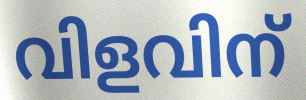
വിളവിന്